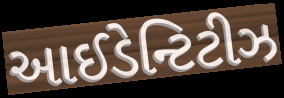
આઈડેન્ટિટીઝ